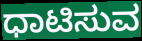
ಧಾಟಿಸುವ